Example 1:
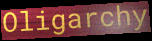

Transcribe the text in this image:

Oligarchy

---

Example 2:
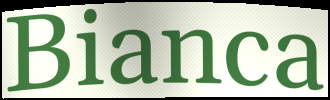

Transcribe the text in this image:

Bianca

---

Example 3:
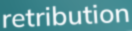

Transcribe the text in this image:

retribution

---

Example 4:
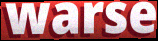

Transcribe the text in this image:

warse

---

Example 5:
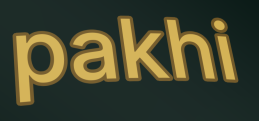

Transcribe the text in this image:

pakhi